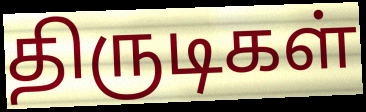
திருடிகள்